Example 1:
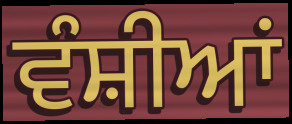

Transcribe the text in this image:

ਵੰਸ਼ੀਆਂ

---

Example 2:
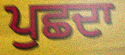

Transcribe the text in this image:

ਪੁਛਦਾ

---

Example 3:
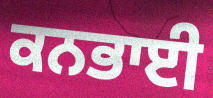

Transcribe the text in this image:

ਕਨਭਾਈ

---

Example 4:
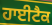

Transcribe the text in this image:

ਹਾਈਟੈਕ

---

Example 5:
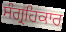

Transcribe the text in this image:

ਸੰਗ੍ਰਹਿਕਾਰ